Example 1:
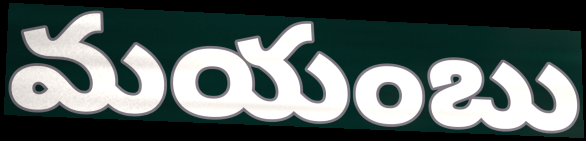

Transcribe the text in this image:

మయంబు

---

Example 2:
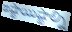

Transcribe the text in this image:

ఇష్టాయిష్టాల్ని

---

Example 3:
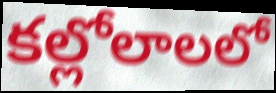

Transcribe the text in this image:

కల్లోలాలలో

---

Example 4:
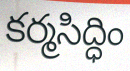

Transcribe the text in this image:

కర్మసిద్ధిం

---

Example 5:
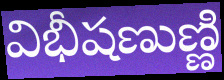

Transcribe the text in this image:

విభీషణుణ్ణి